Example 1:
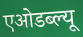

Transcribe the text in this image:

एओडब्ल्यू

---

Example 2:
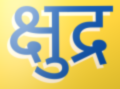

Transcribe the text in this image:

क्षुद्र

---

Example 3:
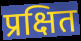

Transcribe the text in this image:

प्रक्षित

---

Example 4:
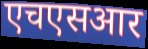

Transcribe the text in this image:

एचएसआर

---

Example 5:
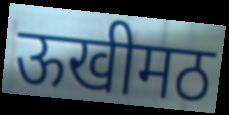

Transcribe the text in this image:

ऊखीमठ